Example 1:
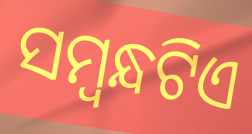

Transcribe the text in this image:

ସମ୍ୱନ୍ଧଟିଏ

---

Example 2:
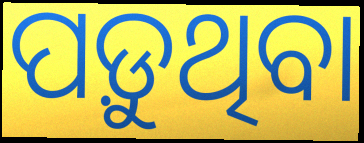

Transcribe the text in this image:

ପଡ଼ୁଥିବା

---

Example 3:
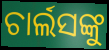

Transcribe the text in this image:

ଚାର୍ଲସଙ୍କୁ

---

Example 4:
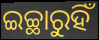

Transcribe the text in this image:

ଇଚ୍ଛାରୁହିଁ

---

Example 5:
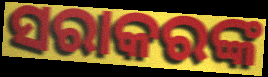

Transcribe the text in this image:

ସରାକରଙ୍କ